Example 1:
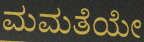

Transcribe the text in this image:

ಮಮತೆಯೇ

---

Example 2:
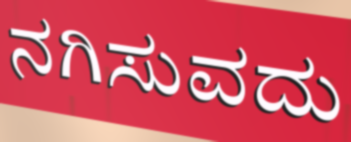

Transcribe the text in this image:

ನಗಿಸುವದು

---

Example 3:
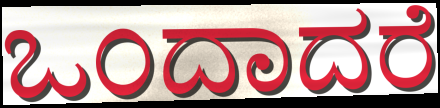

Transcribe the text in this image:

ಒಂದಾದರೆ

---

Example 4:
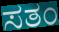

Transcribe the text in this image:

ಸತಂ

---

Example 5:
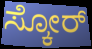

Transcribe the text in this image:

ಸ್ಕೋರ್